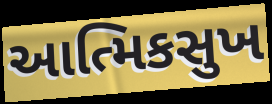
આત્મિકસુખ